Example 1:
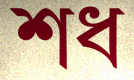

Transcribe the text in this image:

শধ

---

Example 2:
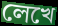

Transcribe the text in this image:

লেখে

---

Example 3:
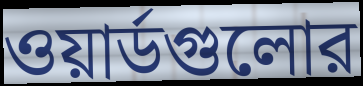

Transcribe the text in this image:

ওয়ার্ডগুলোর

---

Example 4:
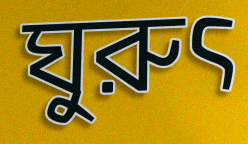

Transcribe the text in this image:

ঘুরুৎ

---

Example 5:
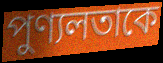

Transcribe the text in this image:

পুণ্যলতাকে